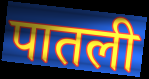
पातली